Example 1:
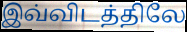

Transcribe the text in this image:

இவ்விடத்திலே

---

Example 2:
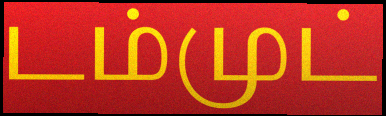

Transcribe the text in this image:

டம்முட்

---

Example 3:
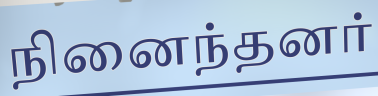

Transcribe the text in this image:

நினைந்தனர்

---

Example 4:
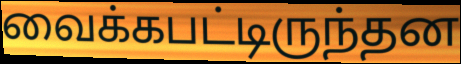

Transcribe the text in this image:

வைக்கபட்டிருந்தன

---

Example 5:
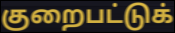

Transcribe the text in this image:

குறைபட்டுக்